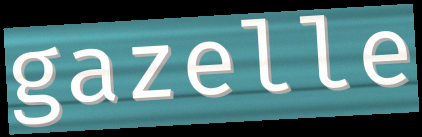
gazelle